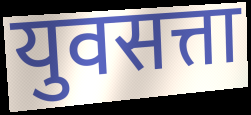
युवसत्ता